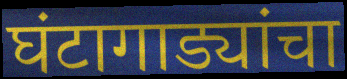
घंटागाड्यांचा